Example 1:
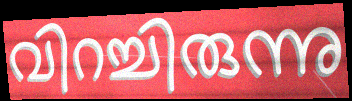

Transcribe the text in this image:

വിറച്ചിരുന്നു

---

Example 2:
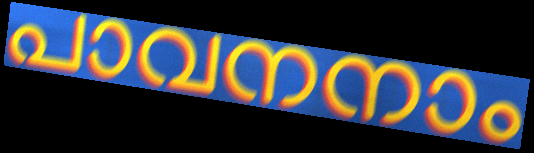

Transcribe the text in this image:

പാവനനാം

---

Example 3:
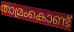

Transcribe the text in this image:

താമ്രംകൊണ്ട്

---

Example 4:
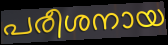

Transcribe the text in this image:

പരീശനായ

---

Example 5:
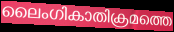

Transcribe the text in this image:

ലൈംഗികാതിക്രമത്തെ